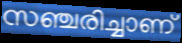
സഞ്ചരിച്ചാണ്